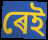
ৰেই